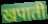
खपाती